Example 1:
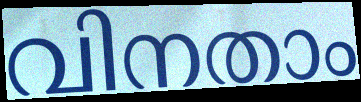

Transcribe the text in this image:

വിനതാം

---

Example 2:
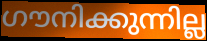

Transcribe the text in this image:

ഗൗനിക്കുന്നില്ല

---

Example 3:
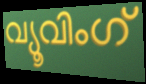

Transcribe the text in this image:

വ്യൂവിംഗ്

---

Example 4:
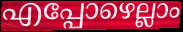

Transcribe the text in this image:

എപ്പോഴെല്ലാം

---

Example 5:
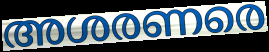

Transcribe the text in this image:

അശരണരെ